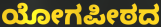
ಯೋಗಪೀಠದ